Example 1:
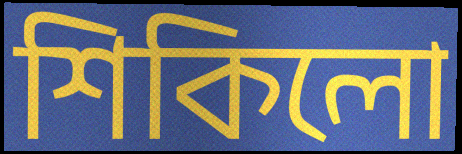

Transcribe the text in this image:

শিকিলো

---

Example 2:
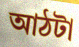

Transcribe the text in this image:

আঠটা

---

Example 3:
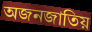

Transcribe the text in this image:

অজনজাতিয়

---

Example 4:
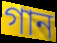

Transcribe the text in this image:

গান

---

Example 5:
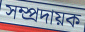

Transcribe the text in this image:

সম্প্ৰদায়ক